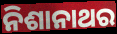
ନିଶାନାଥର